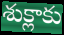
శుక్లాకు